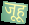
जूहू